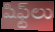
షిఫ్ట్‌లు